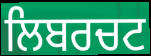
ਲਿਬਰਚਟ